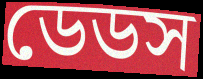
ডেডস